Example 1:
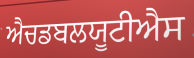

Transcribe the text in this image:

ਐਚਡਬਲਯੂਟੀਐਸ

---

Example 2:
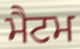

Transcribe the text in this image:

ਮੈਟਮ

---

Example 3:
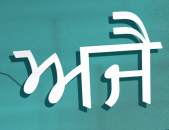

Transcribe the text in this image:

ਅਜੈ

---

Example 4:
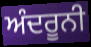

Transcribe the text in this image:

ਅੰਦਰੂਨੀ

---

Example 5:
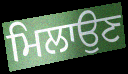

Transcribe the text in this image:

ਮਿਲਾਉਣ